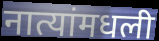
नात्यांमधली